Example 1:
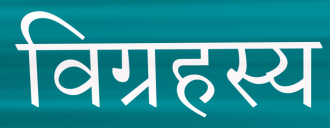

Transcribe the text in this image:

विग्रहस्य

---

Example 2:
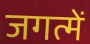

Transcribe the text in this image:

जगत्में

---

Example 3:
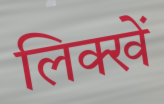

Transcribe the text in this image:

लिक्खें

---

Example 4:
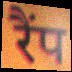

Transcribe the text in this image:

रैंप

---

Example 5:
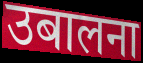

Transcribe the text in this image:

उबालना